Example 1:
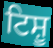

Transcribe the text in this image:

ਟਿਸ਼ੂ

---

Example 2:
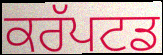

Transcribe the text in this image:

ਕਰੱਪਟਡ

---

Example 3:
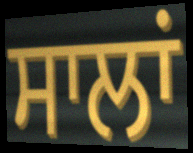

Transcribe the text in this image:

ਸਾਲਾਂ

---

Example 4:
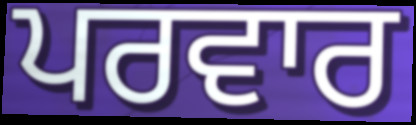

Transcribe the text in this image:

ਪਰਵਾਰ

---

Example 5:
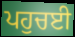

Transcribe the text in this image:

ਪਹੁਚਈ